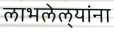
लाभलेल्यांना